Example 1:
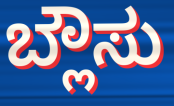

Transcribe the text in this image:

ಬ್ಲೌಸು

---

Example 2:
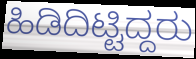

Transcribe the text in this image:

ಹಿಡಿದಿಟ್ಟಿದ್ದರು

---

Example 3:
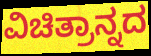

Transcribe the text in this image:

ವಿಚಿತ್ರಾನ್ನದ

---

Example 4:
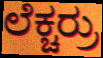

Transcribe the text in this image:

ಲೆಕ್ಚರ್ರು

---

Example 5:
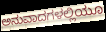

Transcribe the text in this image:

ಅನುವಾದಗಳಲ್ಲಿಯೂ